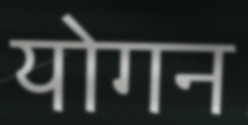
योगन